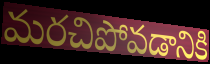
మరచిపోవడానికి